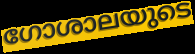
ഗോശാലയുടെ